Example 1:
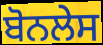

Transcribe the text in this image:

ਬੋਨਲੇਸ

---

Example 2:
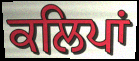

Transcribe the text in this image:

ਕਲਿਪਾਂ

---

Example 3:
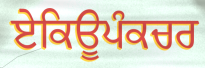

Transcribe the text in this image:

ਏਕਿਊਪੰਕਚਰ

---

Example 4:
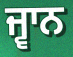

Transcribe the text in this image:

ਜ੍ਵਾਨ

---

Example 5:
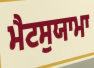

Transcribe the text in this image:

ਮੈਟਸੁਯਾਮਾ